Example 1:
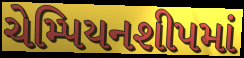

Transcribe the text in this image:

ચેમ્પિયનશીપમાં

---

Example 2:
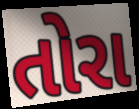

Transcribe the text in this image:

તોરા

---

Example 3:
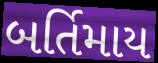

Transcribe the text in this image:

બર્તિમાય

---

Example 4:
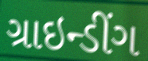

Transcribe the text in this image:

ગ્રાઇન્ડીંગ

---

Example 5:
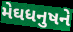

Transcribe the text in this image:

મેઘધનુષને